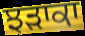
ਝੜਾਕਾ